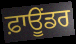
ਫ਼ਾਊਂਡਰ